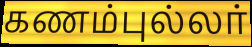
கணம்புல்லர்